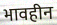
भावहीन